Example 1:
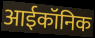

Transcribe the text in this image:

आईकॉनिक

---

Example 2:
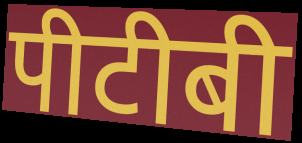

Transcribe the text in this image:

पीटीबी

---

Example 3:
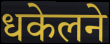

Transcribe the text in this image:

धकेलने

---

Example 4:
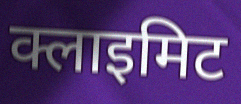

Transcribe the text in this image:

क्लाइमिट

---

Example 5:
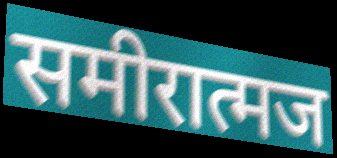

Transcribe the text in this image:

समीरात्मज